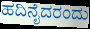
ಹದಿನೈದರಂದು